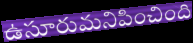
ఉసూరుమనిపించింది